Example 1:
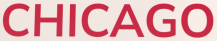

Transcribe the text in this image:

CHICAGO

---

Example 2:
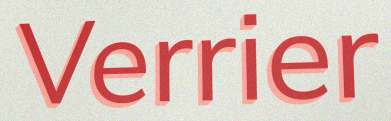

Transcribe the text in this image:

Verrier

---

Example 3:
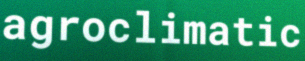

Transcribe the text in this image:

agroclimatic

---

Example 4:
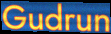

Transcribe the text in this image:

Gudrun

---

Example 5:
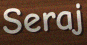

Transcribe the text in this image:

Seraj